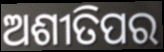
ଅଶୀତିପର